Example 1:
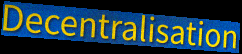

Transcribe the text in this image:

Decentralisation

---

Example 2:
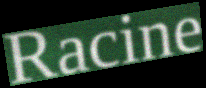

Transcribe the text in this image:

Racine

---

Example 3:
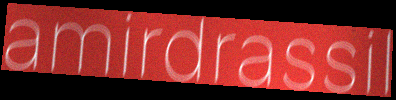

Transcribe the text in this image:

amirdrassil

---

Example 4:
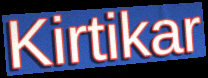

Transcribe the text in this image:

Kirtikar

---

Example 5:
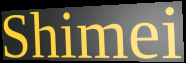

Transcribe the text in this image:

Shimei